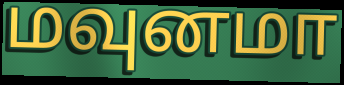
மவுனமா